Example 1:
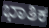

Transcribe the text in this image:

ಭಾತಿಕ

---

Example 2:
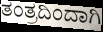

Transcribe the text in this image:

ತಂತ್ರದಿಂದಾಗಿ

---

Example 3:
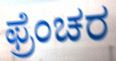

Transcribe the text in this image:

ಫ್ರೆಂಚರ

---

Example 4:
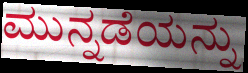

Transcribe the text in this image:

ಮುನ್ನಡೆಯನ್ನು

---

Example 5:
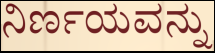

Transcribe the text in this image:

ನಿರ್ಣಯವನ್ನು